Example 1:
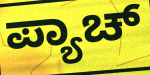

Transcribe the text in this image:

ಪ್ಯಾಚ್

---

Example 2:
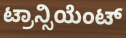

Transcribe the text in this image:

ಟ್ರಾನ್ಸಿಯೆಂಟ್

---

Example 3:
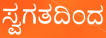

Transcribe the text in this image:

ಸ್ವಗತದಿಂದ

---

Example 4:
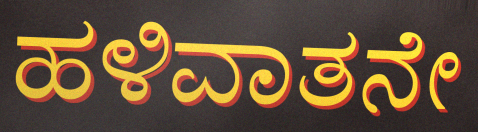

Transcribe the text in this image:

ಹಳಿವಾತನೇ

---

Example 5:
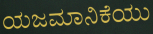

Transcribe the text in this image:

ಯಜಮಾನಿಕೆಯು